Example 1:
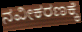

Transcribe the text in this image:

ನವೀಕರಣಕ್ಕೆ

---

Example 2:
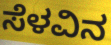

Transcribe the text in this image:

ಸೆಳವಿನ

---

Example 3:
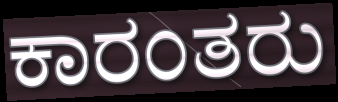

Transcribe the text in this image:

ಕಾರಂತರು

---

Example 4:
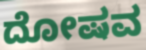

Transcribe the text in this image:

ದೋಷವ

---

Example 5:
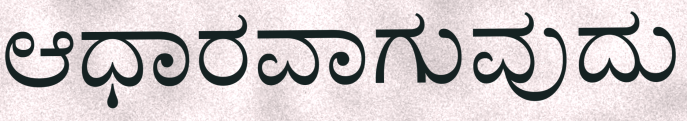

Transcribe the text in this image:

ಆಧಾರವಾಗುವುದು